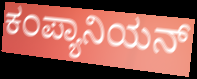
ಕಂಪ್ಯಾನಿಯನ್